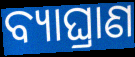
ବ୍ୟାଘ୍ରାଣ